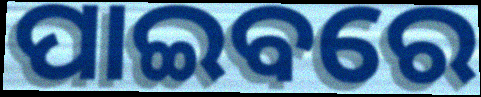
ପାଇବରେ